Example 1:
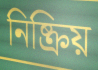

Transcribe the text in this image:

নিষ্ক্ৰিয়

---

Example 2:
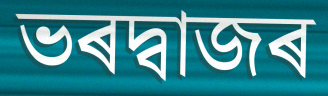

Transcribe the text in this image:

ভৰদ্বাজৰ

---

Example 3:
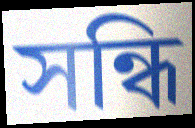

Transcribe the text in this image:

সন্ধি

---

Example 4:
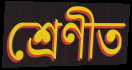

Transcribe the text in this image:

শ্ৰেণীত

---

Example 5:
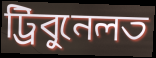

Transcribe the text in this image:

ট্ৰিবুনেলত